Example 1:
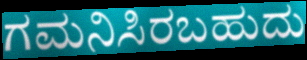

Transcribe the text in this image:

ಗಮನಿಸಿರಬಹುದು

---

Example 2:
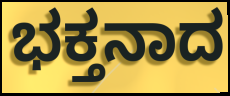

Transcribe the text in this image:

ಭಕ್ತನಾದ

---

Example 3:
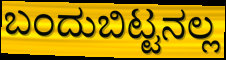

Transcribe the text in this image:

ಬಂದುಬಿಟ್ಟನಲ್ಲ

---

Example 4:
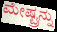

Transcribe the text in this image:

ಮೇಷ್ಟ್ರನ್ನು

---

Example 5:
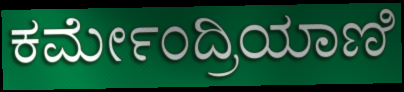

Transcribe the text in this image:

ಕರ್ಮೇಂದ್ರಿಯಾಣಿ